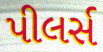
પીલર્સ